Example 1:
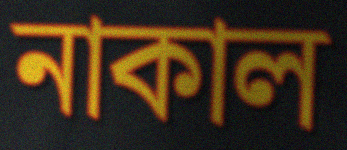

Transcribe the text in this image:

নাকাল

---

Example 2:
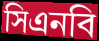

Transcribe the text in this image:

সিএনবি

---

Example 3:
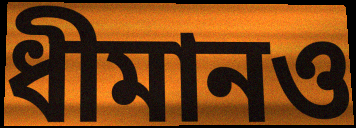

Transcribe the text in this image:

ধীমানও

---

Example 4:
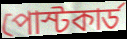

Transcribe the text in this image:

পোস্টকার্ড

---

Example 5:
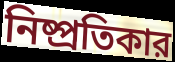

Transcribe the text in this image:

নিষ্প্রতিকার